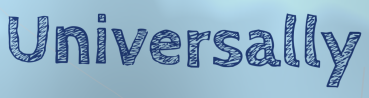
Universally